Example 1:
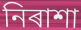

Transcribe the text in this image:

নিৰাশা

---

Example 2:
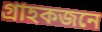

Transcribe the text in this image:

গ্ৰাহকজনে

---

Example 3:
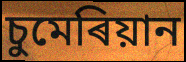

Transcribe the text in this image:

চুমেৰিয়ান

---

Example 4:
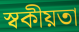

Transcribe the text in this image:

স্বকীয়তা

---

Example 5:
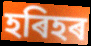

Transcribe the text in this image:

হৰিহৰ